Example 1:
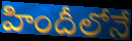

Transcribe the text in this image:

హిందీలోనే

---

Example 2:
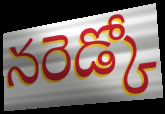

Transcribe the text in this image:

నరెడ్కో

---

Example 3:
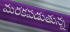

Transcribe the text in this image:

మరకపడుతున్న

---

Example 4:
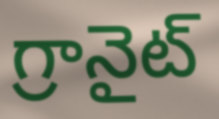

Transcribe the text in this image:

గ్రానైట్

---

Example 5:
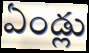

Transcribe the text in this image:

ఏండ్లు